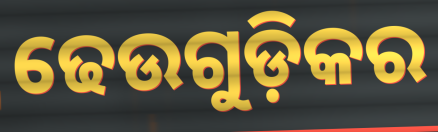
ଢେଉଗୁଡ଼ିକର